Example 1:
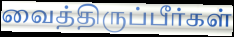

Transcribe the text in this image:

வைத்திருப்பீர்கள்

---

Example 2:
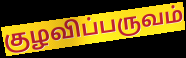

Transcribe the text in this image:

குழவிப்பருவம்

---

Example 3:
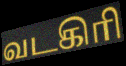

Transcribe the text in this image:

வடகிரி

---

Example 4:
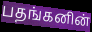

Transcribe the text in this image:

பதங்கனின்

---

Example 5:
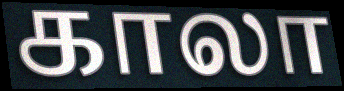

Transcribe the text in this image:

காலா